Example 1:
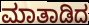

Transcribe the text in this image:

ಮಾತಾಡಿದ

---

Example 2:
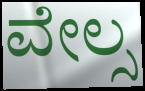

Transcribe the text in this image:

ವೇಲ್ಸ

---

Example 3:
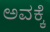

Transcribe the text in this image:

ಅವಕ್ಕೆ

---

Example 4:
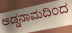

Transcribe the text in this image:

ಅಡ್ಡನಾಮದಿಂದ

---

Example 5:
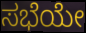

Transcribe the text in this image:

ಸಭೆಯೇ